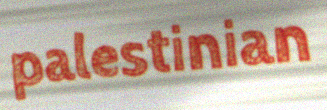
palestinian